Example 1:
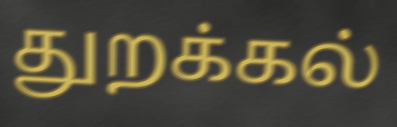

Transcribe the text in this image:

துறக்கல்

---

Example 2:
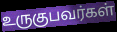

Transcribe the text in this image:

உருகுபவர்கள்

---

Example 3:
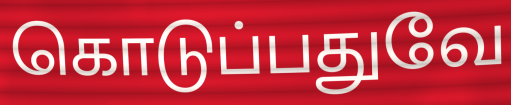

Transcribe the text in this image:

கொடுப்பதுவே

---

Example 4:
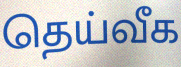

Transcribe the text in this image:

தெய்வீக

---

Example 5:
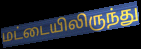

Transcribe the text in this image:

மட்டையிலிருந்து